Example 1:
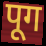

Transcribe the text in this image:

पूग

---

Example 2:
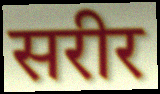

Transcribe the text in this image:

सरीर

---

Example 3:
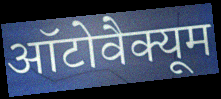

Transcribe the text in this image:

ऑटोवैक्यूम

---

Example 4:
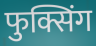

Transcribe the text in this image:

फुक्सिंग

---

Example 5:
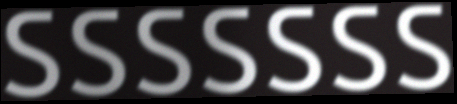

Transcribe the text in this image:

ऽऽऽऽऽऽऽ